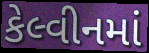
કેલ્વીનમાં